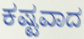
ಕಷ್ಟವಾದ